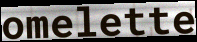
omelette